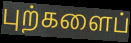
புற்களைப்